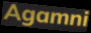
Agamni